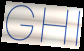
GHI